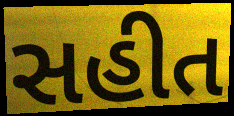
સહીત